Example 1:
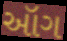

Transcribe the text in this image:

ઑગ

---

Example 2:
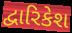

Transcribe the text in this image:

દ્વારિકેશ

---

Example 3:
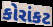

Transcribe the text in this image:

કોરાંકટ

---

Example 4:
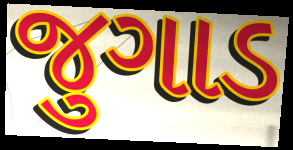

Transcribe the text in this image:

જુગાડ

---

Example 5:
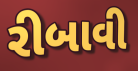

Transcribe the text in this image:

રીબાવી